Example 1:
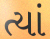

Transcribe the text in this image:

ત્યાં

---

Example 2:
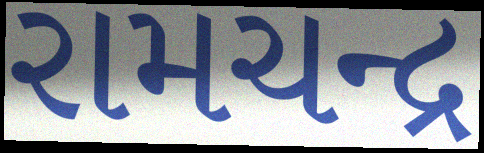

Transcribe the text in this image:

રામચન્દ્ર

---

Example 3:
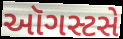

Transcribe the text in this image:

ઑગસ્ટસે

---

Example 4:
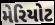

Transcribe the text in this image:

મેરિયોટ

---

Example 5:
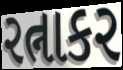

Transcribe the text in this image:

રત્નાકર